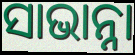
ସାଭାନ୍ନା